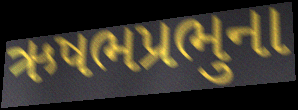
ઋષભપ્રભુના